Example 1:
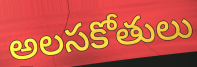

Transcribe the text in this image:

అలసకోతులు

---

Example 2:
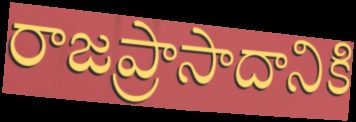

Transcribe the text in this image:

రాజప్రాసాదానికి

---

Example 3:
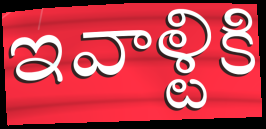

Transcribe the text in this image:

ఇవాళ్టికి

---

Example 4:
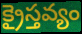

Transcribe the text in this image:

క్రైస్తవ్యం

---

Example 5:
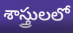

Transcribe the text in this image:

శాస్త్రులలో